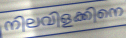
നിലവിളക്കിനെ